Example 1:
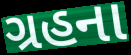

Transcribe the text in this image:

ગ્રહના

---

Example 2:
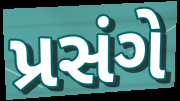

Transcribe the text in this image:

પ્રસંગે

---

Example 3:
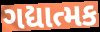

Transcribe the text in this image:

ગદ્યાત્મક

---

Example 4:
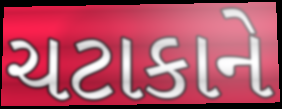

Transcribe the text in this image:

ચટાકાને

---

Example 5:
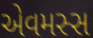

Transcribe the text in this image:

એવમસ્સ